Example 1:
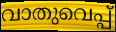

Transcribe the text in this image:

വാതുവെപ്പ്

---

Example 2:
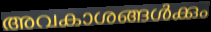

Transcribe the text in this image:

അവകാശങ്ങൾക്കും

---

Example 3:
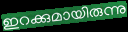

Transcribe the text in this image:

ഇറക്കുമായിരുന്നു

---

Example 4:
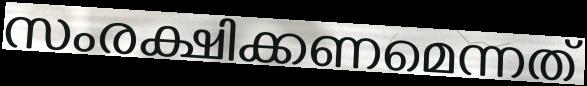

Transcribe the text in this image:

സംരക്ഷിക്കണമെന്നത്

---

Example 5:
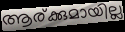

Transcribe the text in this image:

ആര്ക്കുമായില്ല